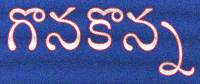
గొనకొన్న